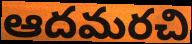
ఆదమరచి